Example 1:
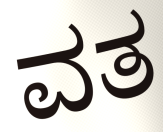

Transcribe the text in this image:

ವತ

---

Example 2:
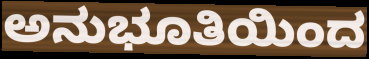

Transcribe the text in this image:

ಅನುಭೂತಿಯಿಂದ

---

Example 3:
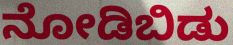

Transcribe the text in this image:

ನೋಡಿಬಿಡು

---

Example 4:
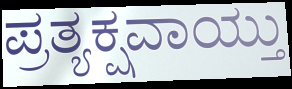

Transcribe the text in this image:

ಪ್ರತ್ಯಕ್ಷವಾಯ್ತು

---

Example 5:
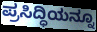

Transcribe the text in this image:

ಪ್ರಸಿದ್ಧಿಯನ್ನೂ